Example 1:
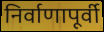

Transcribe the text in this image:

निर्वाणापूर्वी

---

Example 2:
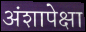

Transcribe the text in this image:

अंशापेक्षा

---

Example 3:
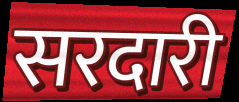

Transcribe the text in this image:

सरदारी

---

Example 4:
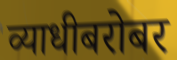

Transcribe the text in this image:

व्याधीबरोबर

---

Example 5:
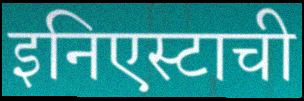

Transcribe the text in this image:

इनिएस्टाची